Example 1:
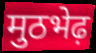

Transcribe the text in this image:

मुठभेढ़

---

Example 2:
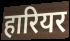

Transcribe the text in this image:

हारियर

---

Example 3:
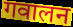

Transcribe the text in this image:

गवालन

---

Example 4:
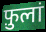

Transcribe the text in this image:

फ़ुलां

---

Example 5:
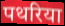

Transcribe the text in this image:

पथरिया